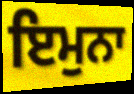
ਇਮੁਨਾ